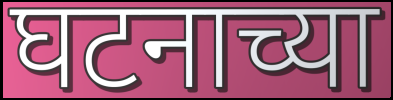
घटनाच्या